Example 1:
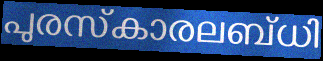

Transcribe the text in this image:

പുരസ്‌കാരലബ്ധി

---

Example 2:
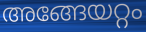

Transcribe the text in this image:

അങ്ങേയറ്റം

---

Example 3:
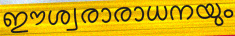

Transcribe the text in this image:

ഈശ്വരാരാധനയും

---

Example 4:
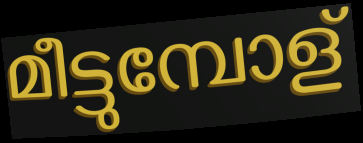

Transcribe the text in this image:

മീട്ടുമ്പോള്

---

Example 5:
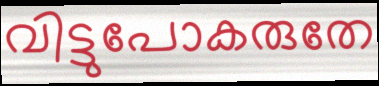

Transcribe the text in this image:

വിട്ടുപോകരുതേ